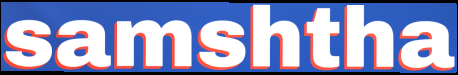
samshtha